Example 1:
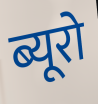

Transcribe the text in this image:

ब्‍यूरो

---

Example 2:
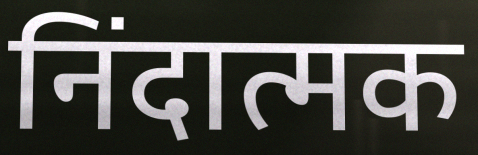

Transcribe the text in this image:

निंदात्मक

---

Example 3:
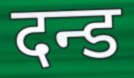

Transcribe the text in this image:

दन्ड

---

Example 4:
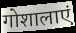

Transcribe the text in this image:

गोशालाएं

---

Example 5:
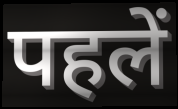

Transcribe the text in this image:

पहलें